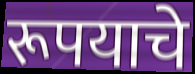
रूपयाचे